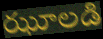
ఝూలడి